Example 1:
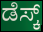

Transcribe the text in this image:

ಡೆಸ್ಕ್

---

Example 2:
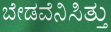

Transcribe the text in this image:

ಬೇಡವೆನಿಸಿತ್ತು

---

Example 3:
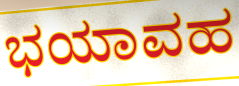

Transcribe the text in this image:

ಭಯಾವಹ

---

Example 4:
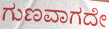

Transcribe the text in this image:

ಗುಣವಾಗದೇ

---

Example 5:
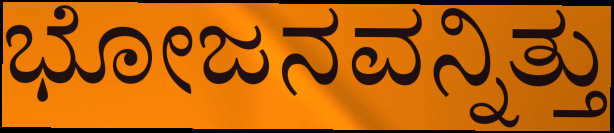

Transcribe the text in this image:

ಭೋಜನವನ್ನಿತ್ತು